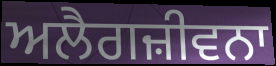
ਅਲੈਗਜ਼ੀਵਨਾ